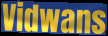
Vidwans